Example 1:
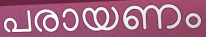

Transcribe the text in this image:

പരായണം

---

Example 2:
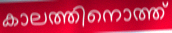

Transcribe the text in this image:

കാലത്തിനൊത്ത്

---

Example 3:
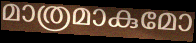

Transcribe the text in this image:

മാത്രമാകുമോ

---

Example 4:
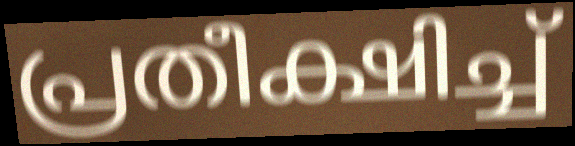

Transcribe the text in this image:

പ്രതീക്ഷിച്ച്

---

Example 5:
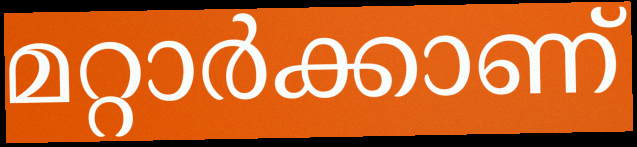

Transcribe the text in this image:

മറ്റാർക്കാണ്